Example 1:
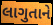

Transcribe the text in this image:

લાગુતાને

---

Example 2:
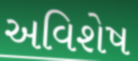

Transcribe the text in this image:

અવિશેષ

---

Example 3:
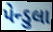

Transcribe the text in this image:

પેન્ડુલા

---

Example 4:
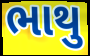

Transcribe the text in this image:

ભાથુ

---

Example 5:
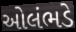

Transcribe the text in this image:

ઓલંભડે